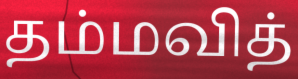
தம்மவித்